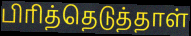
பிரித்தெடுத்தாள்